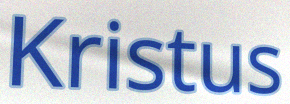
Kristus